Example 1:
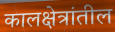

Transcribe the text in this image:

कालक्षेत्रांतील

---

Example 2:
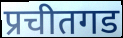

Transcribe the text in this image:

प्रचीतगड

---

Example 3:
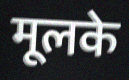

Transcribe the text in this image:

मूलके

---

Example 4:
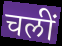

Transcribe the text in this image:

चलीं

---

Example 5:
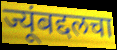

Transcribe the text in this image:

ज्यूंबद्दलचा